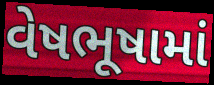
વેષભૂષામાં